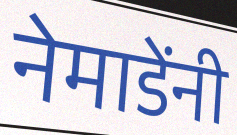
नेमाडेंनी